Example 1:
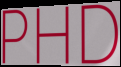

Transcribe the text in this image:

PHD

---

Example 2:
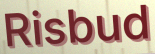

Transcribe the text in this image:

Risbud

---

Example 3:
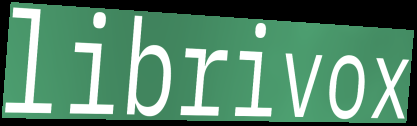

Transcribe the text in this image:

librivox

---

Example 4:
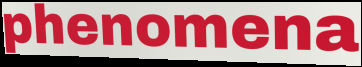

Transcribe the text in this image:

phenomena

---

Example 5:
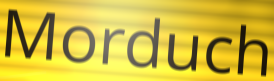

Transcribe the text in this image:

Morduch